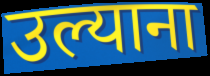
उल्याना